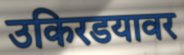
उकिरडयावर